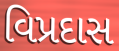
વિપ્રદાસ